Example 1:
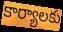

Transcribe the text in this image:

కార్యాలకు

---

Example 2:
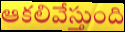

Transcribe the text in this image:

ఆకలివేస్తుంది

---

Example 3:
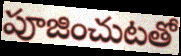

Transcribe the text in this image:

పూజించుటతో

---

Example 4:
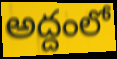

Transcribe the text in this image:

అద్దంలో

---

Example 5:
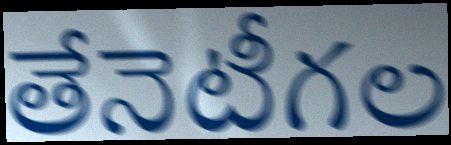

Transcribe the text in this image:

తేనెటీగల